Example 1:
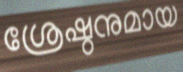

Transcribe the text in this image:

ശ്രേഷ്ഠനുമായ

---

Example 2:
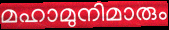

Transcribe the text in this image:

മഹാമുനിമാരും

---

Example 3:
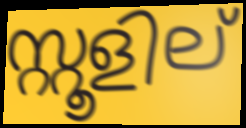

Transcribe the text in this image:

സ്റ്റൂളില്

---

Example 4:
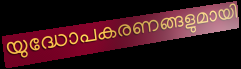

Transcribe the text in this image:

യുദ്ധോപകരണങ്ങളുമായി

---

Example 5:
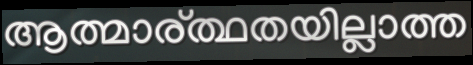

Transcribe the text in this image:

ആത്മാര്ത്ഥതയില്ലാത്ത